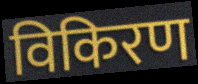
विकिरण